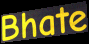
Bhate